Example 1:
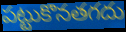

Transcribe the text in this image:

పట్టుకొనతగదు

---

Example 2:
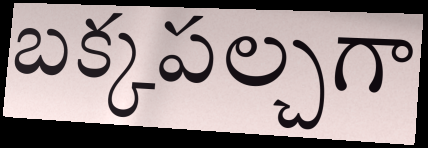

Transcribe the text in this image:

బక్కపల్చగా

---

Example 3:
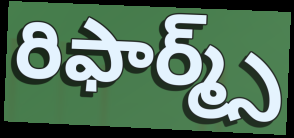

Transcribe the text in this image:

రిఫార్మ్స్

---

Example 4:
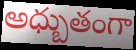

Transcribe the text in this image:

అధ్బుతంగా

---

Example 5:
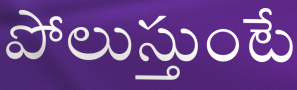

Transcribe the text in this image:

పోలుస్తుంటే